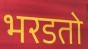
भरडतो